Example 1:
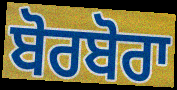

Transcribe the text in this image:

ਬੋਰਬੋਰਾ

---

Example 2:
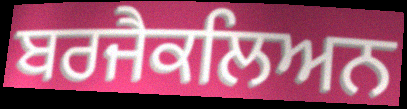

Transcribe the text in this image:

ਬਰਜੈਕਲਿਅਨ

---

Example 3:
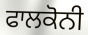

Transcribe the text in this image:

ਫਾਲਕੋਨੀ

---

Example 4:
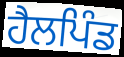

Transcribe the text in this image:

ਹੈਲਪਿੰਡ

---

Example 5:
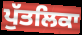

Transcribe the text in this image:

ਪੁੱਤਲਿਕਾ